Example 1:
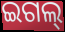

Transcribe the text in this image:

ଇଗଲ୍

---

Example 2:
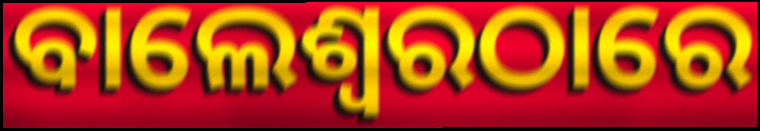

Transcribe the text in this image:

ବାଲେଶ୍ଵରଠାରେ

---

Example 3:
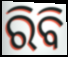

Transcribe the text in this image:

ରିବି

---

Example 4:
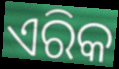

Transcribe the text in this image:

ଏରିକ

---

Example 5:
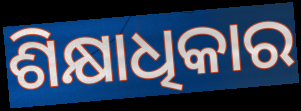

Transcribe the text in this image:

ଶିକ୍ଷାଧିକାର